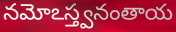
నమోఽస్త్వనంతాయ